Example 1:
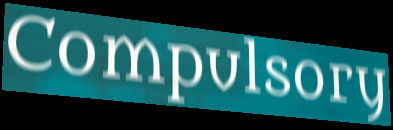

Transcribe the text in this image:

Compulsory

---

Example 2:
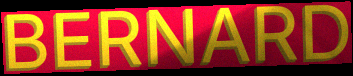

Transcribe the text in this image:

BERNARD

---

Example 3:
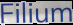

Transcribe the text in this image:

Filium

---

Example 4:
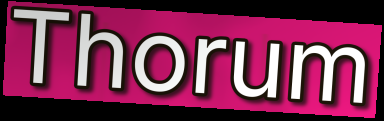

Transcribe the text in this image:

Thorum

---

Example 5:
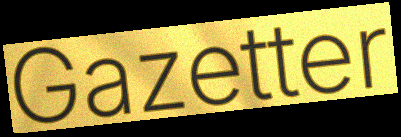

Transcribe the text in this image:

Gazetter